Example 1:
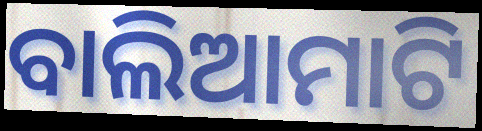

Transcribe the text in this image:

ବାଲିଆମାଟି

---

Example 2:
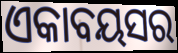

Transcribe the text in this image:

ଏକାବୟସର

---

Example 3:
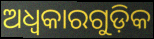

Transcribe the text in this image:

ଅଧ୍ବକାରଗୁଡ଼ିକ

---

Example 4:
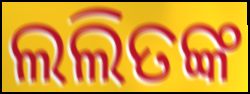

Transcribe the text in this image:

ଲଲିତଙ୍କ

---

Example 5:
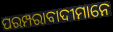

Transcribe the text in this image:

ପରମ୍ପରାବାଦୀମାନେ